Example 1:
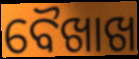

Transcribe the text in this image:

ବୈଖାଖ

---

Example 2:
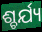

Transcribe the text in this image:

ଶ୍ଚର୍ଯ୍ୟ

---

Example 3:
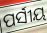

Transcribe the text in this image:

ପର୍ସୀୟ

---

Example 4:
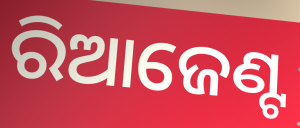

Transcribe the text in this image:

ରିଆଜେଣ୍ଟ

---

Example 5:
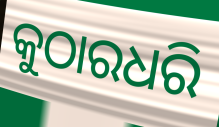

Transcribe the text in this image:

କୁଠାରଧରି